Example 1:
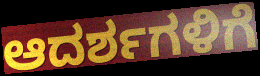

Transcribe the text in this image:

ಆದರ್ಶಗಳಿಗೆ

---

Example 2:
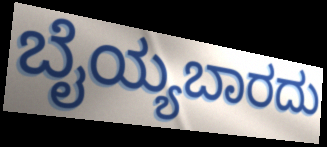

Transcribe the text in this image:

ಬೈಯ್ಯಬಾರದು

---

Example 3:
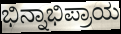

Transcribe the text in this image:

ಭಿನ್ನಾಭಿಪ್ರಾಯ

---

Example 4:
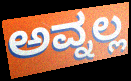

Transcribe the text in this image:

ಅವ್ನಲ್ಲ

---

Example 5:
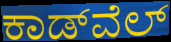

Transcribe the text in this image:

ಕಾಡ್‌ವೆಲ್